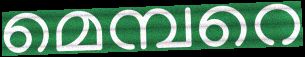
മെമ്പറെ